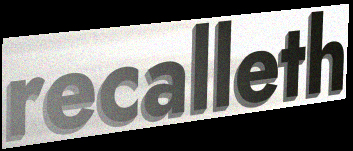
recalleth